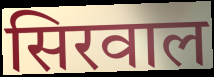
सिरवाल